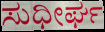
ಸುಧೀರ್ಘ